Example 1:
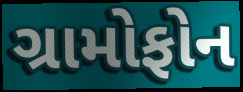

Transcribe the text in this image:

ગ્રામોફોન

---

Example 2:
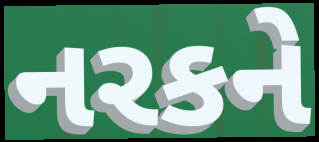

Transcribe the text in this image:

નરકને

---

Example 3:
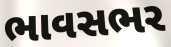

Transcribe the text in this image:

ભાવસભર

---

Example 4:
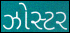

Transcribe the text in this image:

ઝોસ્ટર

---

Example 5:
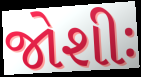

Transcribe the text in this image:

જોશીઃ